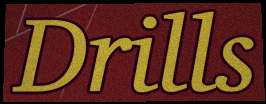
Drills